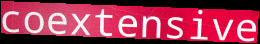
coextensive